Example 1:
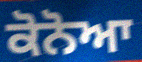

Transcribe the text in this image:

ਕੋਨੋਆ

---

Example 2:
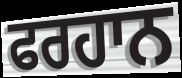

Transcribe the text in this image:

ਫਰਹਾਨ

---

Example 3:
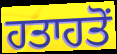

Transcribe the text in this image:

ਹਤਾਹਤੋਂ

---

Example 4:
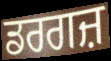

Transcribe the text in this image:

ਡਰਗਜ਼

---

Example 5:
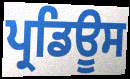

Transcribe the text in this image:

ਪ੍ਰਡਿਊਸ